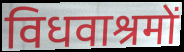
विधवाश्रमों